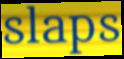
slaps